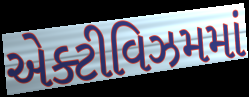
એક્ટીવિઝમમાં